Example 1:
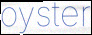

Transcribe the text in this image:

oyster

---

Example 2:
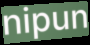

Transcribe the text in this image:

nipun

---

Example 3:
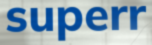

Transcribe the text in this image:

superr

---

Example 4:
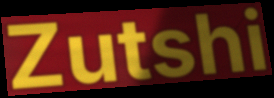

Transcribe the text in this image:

Zutshi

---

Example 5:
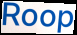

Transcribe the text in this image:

Roop